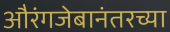
औरंगजेबानंतरच्या